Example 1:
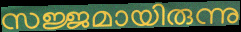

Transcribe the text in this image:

സജ്ജമായിരുന്നു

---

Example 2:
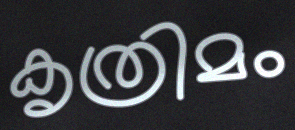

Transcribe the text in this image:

കൃത്രിമം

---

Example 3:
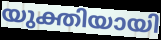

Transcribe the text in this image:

യുക്തിയായി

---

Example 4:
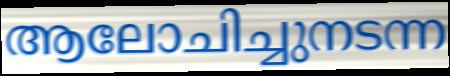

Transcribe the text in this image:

ആലോചിച്ചുനടന്ന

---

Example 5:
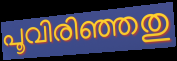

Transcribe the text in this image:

പൂവിരിഞ്ഞതു